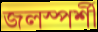
জলস্পর্শী